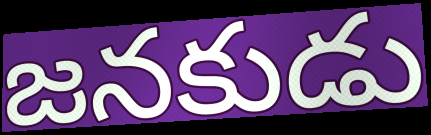
జనకుడు